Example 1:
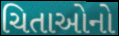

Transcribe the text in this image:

ચિતાઓનો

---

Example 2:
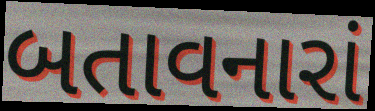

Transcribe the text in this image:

બતાવનારાં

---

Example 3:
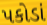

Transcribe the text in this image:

પકોડાં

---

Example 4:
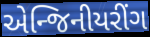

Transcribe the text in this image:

એન્જિનીયરીંગ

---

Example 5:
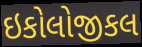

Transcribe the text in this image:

ઇકોલોજીકલ